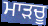
ਮਾੜਚੂ